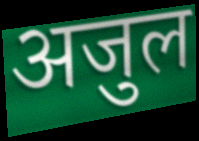
अजुल